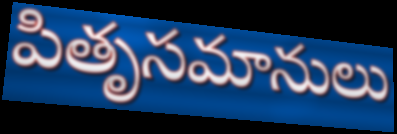
పితృసమానులు